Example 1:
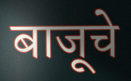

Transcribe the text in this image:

बाजूचे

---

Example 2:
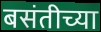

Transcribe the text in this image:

बसंतीच्या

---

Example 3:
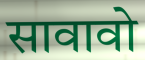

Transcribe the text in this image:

सावावो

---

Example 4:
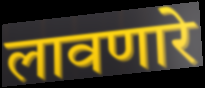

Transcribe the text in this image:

लावणारे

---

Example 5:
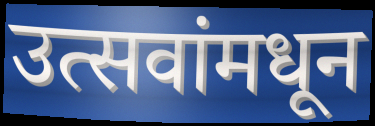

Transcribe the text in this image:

उत्सवांमधून